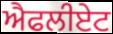
ਐਫਲੀਏਟ